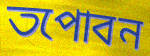
তপোবন